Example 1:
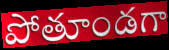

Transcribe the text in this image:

పోతూండగా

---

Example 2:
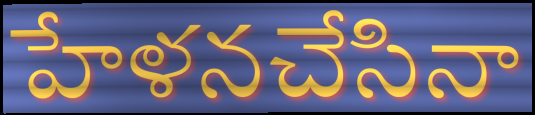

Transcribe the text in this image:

హేళనచేసినా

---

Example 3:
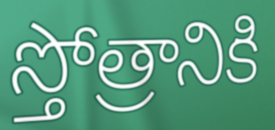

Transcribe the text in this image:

స్తోత్రానికి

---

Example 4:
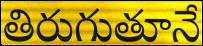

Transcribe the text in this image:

తిరుగుతూనే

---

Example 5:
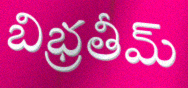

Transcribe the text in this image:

బిభ్రతీమ్